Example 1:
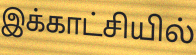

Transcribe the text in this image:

இக்காட்சியில்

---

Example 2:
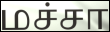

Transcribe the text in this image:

மச்சா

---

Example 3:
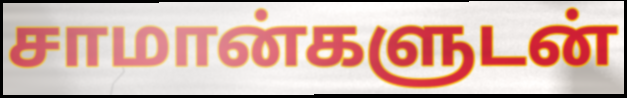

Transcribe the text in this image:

சாமான்களுடன்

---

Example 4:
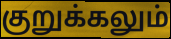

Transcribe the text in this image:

குறுக்கலும்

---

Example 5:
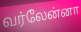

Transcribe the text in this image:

வர்லேன்னா